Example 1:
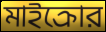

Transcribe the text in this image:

মাইক্রোর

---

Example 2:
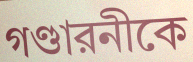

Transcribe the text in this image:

গণ্ডারনীকে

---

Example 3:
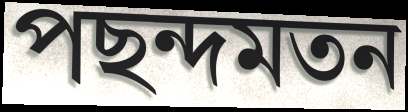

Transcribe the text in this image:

পছন্দমতন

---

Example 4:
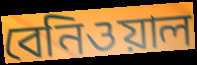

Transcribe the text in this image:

বেনিওয়াল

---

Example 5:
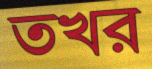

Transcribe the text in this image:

তখর